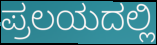
ಪ್ರಲಯದಲ್ಲಿ